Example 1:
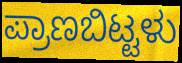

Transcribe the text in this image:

ಪ್ರಾಣಬಿಟ್ಟಳು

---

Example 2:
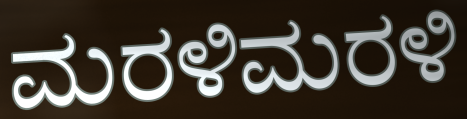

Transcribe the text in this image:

ಮರಳಿಮರಳಿ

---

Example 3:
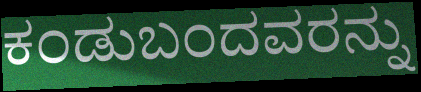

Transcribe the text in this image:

ಕಂಡುಬಂದವರನ್ನು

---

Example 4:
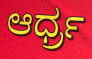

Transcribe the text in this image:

ಆರ್ಧ್ರ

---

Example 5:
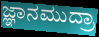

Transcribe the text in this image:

ಜ್ಞಾನಮುದ್ರಾ